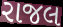
રાજલ